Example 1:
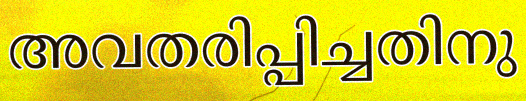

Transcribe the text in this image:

അവതരിപ്പിച്ചതിനു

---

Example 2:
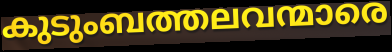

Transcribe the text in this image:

കുടുംബത്തലവന്മാരെ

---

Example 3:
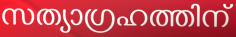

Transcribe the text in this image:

സത്യാഗ്രഹത്തിന്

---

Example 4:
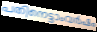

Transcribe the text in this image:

പതിനെട്ടാംവർഷം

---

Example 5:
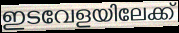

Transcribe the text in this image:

ഇടവേളയിലേക്ക്